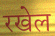
रखेल